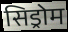
सिड्रोम